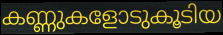
കണ്ണുകളോടുകൂടിയ